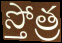
స్తోత్ర